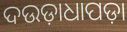
ଦଉଡ଼ାଧାପଡ଼ା